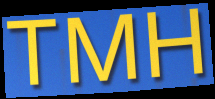
TMH